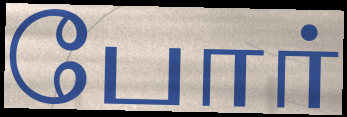
போர்